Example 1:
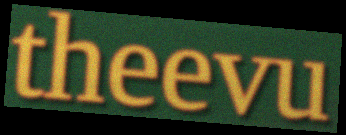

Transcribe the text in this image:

theevu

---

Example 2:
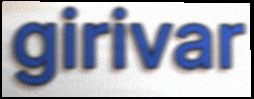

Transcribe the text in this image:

girivar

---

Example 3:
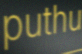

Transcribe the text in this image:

puthu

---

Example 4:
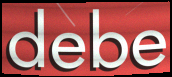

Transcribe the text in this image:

debe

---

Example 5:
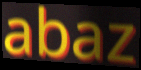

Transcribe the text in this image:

abaz